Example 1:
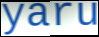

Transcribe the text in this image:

yaru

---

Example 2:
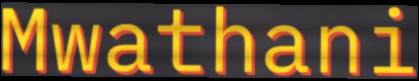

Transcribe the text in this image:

Mwathani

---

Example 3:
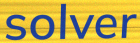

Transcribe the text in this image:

solver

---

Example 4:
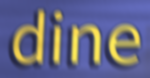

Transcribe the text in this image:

dine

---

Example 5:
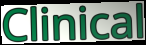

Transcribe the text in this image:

Clinical